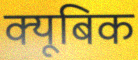
क्यूबिक